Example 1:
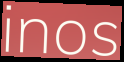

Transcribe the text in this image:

inos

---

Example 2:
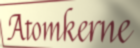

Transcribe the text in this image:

Atomkerne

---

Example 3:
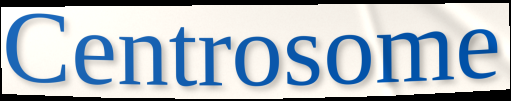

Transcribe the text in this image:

Centrosome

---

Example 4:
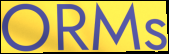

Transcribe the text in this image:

ORMs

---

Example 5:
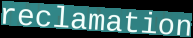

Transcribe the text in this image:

reclamation